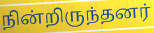
நின்றிருந்தனர்